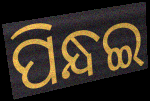
ପିନ୍ଧଇ